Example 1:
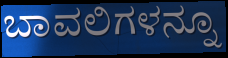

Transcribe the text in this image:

ಬಾವಲಿಗಳನ್ನೂ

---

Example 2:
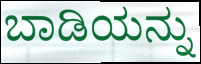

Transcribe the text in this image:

ಬಾಡಿಯನ್ನು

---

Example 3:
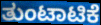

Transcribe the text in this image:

ತುಂಟಾಟಿಕೆ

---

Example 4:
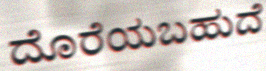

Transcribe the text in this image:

ದೊರೆಯಬಹುದೆ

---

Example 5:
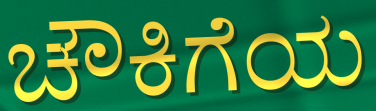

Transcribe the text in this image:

ಚೌಕಿಗೆಯ